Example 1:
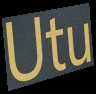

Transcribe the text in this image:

Utu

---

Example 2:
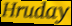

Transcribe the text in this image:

Hruday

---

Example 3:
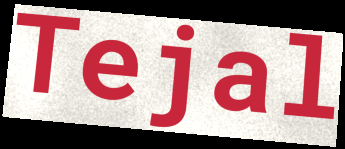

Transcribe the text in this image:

Tejal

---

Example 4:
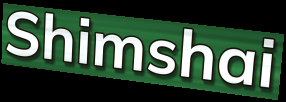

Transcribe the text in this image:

Shimshai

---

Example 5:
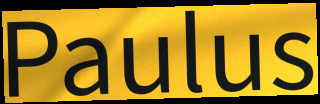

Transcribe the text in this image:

Paulus